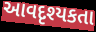
આવદૃશ્યકતા